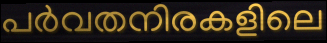
പർവതനിരകളിലെ